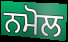
ਨਮੋਲ